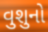
વુશુનો